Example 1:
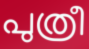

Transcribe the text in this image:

പുത്രീ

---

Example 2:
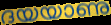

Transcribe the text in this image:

ദയയാണു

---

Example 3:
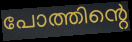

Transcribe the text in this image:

പോത്തിന്റെ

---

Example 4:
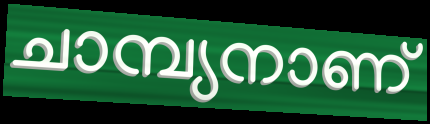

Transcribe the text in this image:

ചാമ്പ്യനാണ്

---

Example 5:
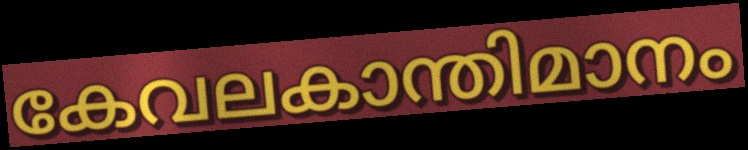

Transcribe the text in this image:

കേവലകാന്തിമാനം